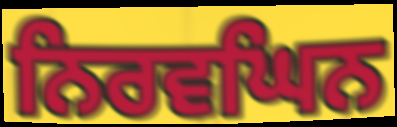
ਨਿਰਵਘਿਨ